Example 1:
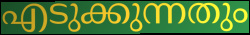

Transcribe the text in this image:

എടുക്കുന്നതും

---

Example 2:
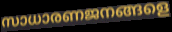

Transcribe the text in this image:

സാധാരണജനങ്ങളെ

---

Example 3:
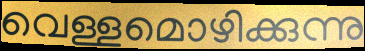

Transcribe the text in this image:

വെള്ളമൊഴിക്കുന്നു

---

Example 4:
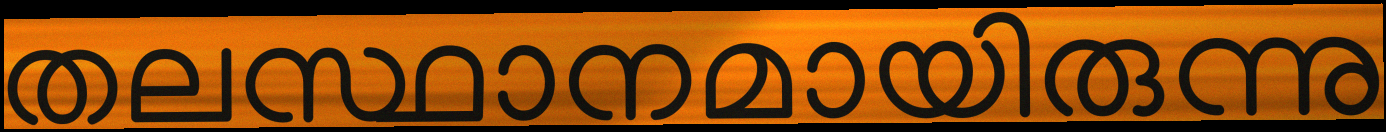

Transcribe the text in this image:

തലസ്ഥാനമായിരുന്നു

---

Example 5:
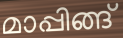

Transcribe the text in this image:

മാപ്പിങ്ങ്